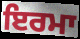
ਇਰਮਾ